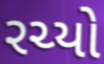
રચ્યો